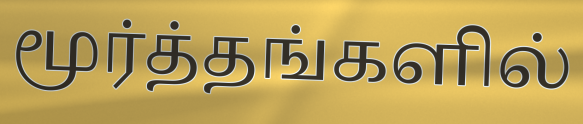
மூர்த்தங்களில்